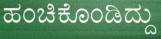
ಹಂಚಿಕೊಂಡಿದ್ದು